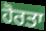
ਹੋਰਤਾ